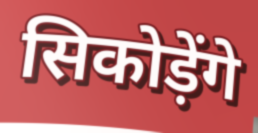
सिकोड़ेंगे